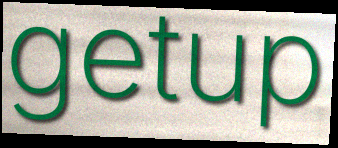
getup